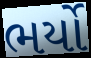
ભર્યો